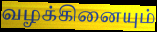
வழக்கினையும்